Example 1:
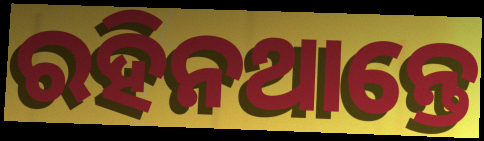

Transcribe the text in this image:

ରହିନଥାନ୍ତେ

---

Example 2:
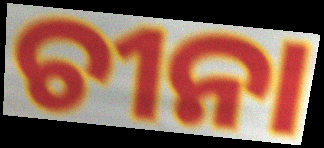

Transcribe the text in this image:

ଚୀନା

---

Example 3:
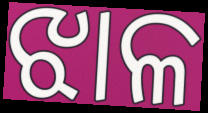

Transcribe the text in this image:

ଝାଳ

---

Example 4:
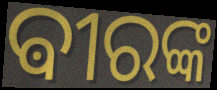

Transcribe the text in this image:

ଵୀରଙ୍କ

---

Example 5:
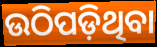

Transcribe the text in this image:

ଉଠିପଡ଼ିଥିବା